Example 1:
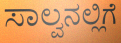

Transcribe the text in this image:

ಸಾಲ್ವನಲ್ಲಿಗೆ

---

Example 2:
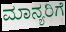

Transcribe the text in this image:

ಮಾನ್ಯರಿಗೆ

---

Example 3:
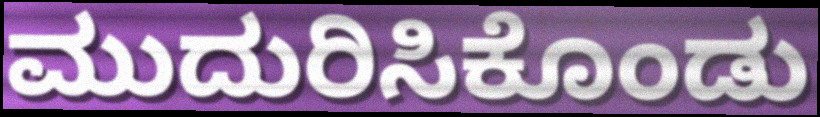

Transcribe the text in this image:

ಮುದುರಿಸಿಕೊಂಡು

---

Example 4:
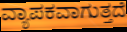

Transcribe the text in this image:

ವ್ಯಾಪಕವಾಗುತ್ತದೆ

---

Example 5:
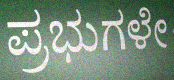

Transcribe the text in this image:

ಪ್ರಭುಗಳೇ